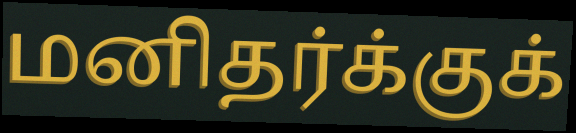
மனிதர்க்குக்